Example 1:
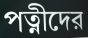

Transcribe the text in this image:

পত্নীদের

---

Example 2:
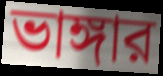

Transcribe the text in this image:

ভাঙ্গার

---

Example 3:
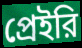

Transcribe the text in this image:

প্রেইরি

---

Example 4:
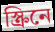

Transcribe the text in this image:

স্ক্রিনে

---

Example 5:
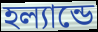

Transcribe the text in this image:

হল্যান্ডে